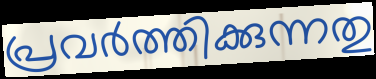
പ്രവർത്തിക്കുന്നതു